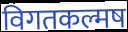
विगतकल्मष